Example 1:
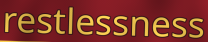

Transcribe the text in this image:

restlessness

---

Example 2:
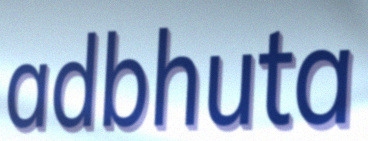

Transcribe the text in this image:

adbhuta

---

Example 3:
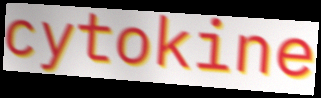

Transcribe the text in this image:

cytokine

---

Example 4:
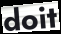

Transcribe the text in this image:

doit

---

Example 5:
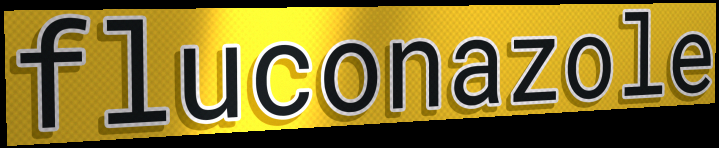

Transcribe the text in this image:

fluconazole